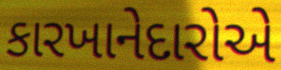
કારખાનેદારોએ